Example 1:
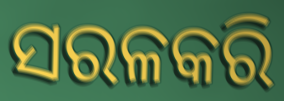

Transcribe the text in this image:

ସରଳକରି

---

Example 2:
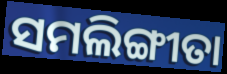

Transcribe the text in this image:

ସମଲିଙ୍ଗୀତା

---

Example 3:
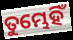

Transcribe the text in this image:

ତୁମ୍ଭେହିଁ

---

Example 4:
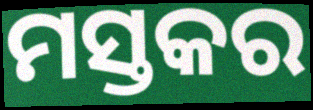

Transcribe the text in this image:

ମସ୍ତକର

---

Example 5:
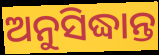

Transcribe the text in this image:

ଅନୁସିଦ୍ଧାନ୍ତ